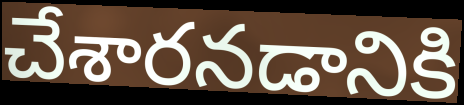
చేశారనడానికి